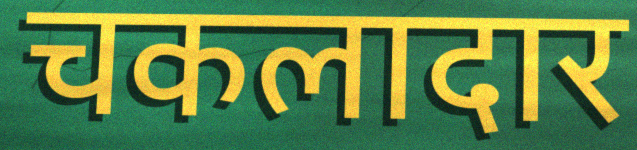
चकलादार